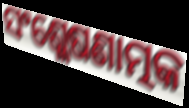
ସଂଶ୍ଳେଷଣାତ୍ମକ